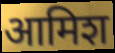
आमिश